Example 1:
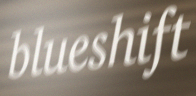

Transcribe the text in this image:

blueshift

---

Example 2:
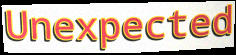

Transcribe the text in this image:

Unexpected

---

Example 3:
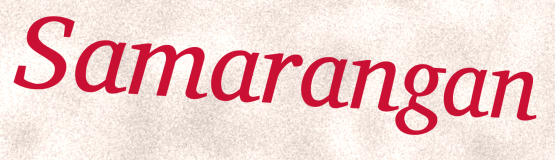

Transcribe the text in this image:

Samarangan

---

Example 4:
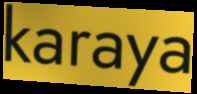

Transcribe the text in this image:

karaya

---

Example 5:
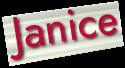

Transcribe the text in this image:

Janice